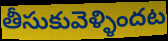
తీసుకువెళ్ళిందట